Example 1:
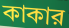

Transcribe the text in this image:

কাকার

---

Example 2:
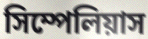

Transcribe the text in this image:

সিম্পেলিয়াস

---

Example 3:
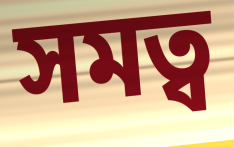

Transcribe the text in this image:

সমত্ব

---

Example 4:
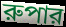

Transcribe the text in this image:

রুপার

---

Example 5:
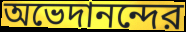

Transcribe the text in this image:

অভেদানন্দের